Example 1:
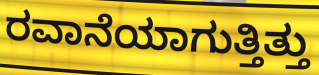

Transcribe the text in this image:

ರವಾನೆಯಾಗುತ್ತಿತ್ತು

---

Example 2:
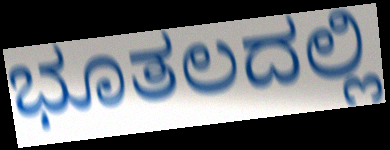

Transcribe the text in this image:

ಭೂತಲದಲ್ಲಿ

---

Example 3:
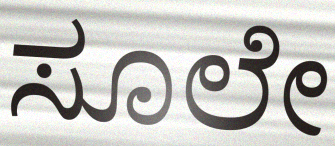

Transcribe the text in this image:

ಸೂಲೇ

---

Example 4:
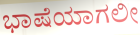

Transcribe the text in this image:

ಭಾಷೆಯಾಗಲೀ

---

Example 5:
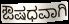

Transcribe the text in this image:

ಔಷಧವಾಗಿ